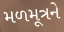
મળમૂત્રને